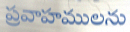
ప్రవాహములను